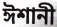
ঈশানী